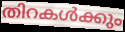
തിറകൾക്കും